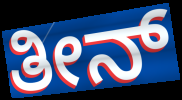
ತೀನ್